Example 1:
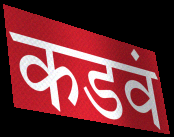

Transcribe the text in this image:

कडवं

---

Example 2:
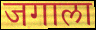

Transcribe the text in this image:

जगाला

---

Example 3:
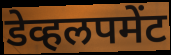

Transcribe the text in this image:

डेव्हलपमेंट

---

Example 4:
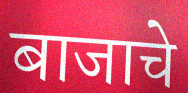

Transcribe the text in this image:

बाजाचे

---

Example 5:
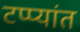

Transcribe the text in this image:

टप्प्यांत